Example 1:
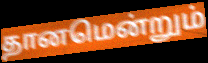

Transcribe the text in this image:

தானமென்றும்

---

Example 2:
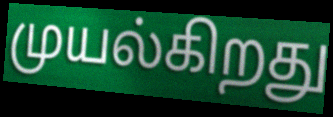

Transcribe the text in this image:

முயல்கிறது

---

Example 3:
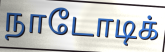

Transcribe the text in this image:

நாடோடிக்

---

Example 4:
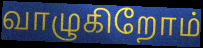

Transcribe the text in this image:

வாழுகிறோம்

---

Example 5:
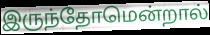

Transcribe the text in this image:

இருந்தோமென்றால்